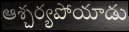
ఆశ్చర్యపోయాడు